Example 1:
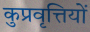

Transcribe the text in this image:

कुप्रवृत्तियों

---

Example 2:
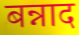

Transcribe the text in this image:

बन्नाद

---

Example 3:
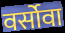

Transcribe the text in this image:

वर्सोवा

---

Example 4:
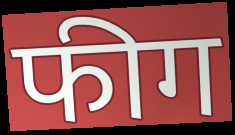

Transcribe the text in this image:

फीग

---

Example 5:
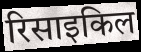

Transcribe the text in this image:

रिसाइकिल